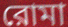
রোমা